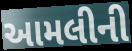
આમલીની